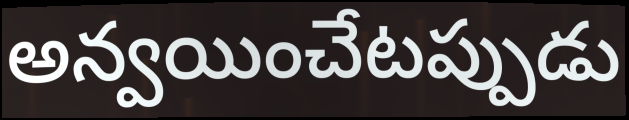
అన్వయించేటప్పుడు